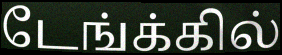
டேங்க்கில்